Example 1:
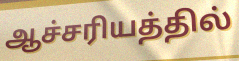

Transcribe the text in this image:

ஆச்சரியத்தில்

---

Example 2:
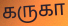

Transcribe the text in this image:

கருகா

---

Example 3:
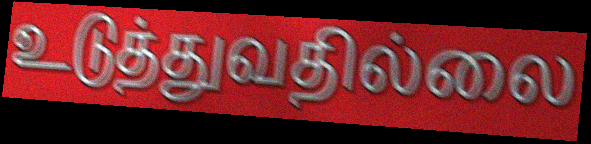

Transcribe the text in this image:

உடுத்துவதில்லை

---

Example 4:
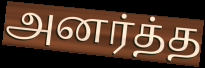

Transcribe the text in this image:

அனர்த்த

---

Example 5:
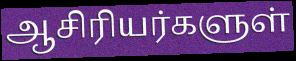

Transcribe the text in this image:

ஆசிரியர்களுள்